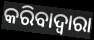
କରିବାଦ୍ବାରା